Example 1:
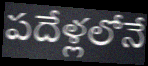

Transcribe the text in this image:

పదేళ్లలోనే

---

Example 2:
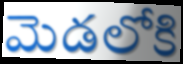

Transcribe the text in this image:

మెడలోకి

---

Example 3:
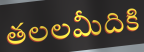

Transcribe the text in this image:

తలలమీదికి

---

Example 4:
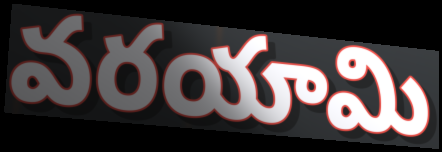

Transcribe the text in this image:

వరయామి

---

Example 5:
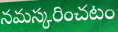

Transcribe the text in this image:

నమస్కరించటం